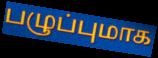
பழுப்புமாக